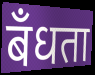
बँधता